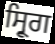
ਸ੍ਟ੍ਰਿਗ